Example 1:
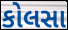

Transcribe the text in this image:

કોલસા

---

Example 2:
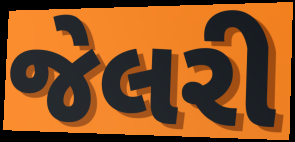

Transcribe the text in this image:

જેલરી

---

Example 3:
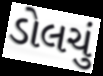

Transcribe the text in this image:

ડોલચું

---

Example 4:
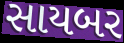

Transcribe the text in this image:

સાયબર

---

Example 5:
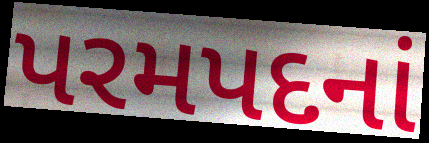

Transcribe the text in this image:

પરમપદનાં